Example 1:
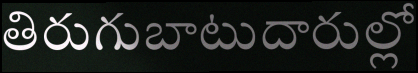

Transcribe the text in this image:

తిరుగుబాటుదారుల్లో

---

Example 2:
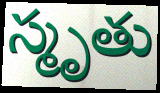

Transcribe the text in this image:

స్మృతు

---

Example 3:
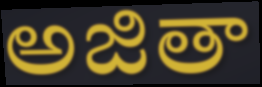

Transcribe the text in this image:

అజితా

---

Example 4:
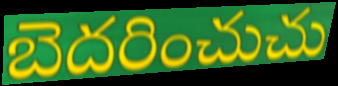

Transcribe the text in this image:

బెదరించుచు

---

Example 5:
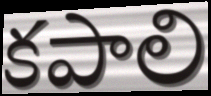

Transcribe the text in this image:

కపాలి